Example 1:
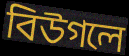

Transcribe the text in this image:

বিউগলে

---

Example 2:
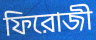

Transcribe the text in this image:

ফিরোজী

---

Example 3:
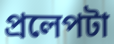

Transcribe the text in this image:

প্রলেপটা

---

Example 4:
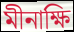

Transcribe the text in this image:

মীনাক্ষি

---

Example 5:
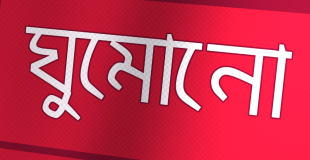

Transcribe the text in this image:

ঘুমোনো